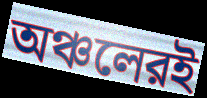
অঞ্চলেরই